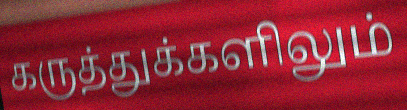
கருத்துக்களிலும்